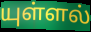
யுள்ளல்